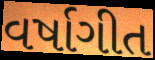
વર્ષાગીત